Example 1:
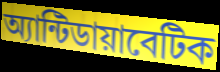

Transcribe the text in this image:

অ্যান্টিডায়াবেটিক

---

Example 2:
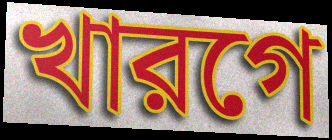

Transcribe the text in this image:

খারগে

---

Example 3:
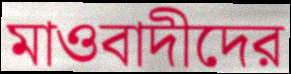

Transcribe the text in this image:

মাওবাদীদের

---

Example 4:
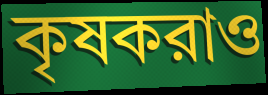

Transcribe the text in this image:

কৃষকরাও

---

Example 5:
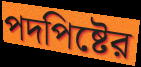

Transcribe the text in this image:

পদপিষ্টের